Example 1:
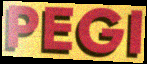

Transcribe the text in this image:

PEGI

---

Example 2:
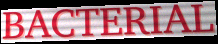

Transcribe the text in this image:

BACTERIAL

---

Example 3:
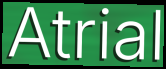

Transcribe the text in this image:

Atrial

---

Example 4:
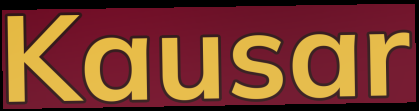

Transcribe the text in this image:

Kausar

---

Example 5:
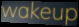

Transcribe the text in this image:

wakeup